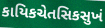
કાયિકચેતસિકસુખં